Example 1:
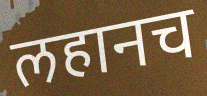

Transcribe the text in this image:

लहानच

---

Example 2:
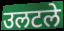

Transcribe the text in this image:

उलटले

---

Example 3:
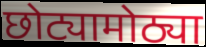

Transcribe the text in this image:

छोट्यामोठ्या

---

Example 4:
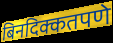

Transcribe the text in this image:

बिनदिक्कतपणे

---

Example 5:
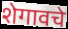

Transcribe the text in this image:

शेगावचे